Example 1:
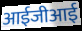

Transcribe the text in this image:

आईजीआई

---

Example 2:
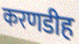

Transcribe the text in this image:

करणडीह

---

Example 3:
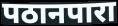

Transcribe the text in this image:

पठानपारा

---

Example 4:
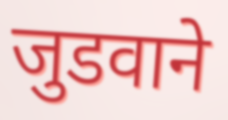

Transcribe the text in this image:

जुडवाने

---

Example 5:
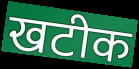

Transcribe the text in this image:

खटीक